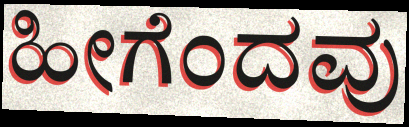
ಹೀಗೆಂದವು